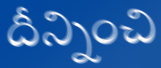
దీన్నించి